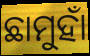
ଛାମୁହାଁ